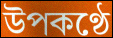
উপকণ্ঠে